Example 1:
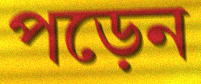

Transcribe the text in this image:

পড়েন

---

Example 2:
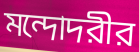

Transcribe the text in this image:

মন্দোদরীর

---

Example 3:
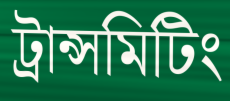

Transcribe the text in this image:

ট্রান্সমিটিং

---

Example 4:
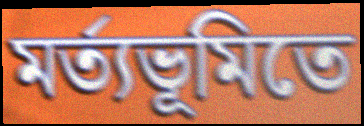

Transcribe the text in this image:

মর্ত্যভূমিতে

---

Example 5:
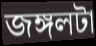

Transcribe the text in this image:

জঙ্গলটা